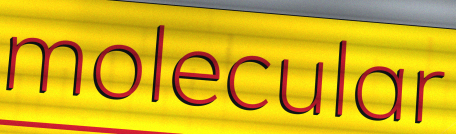
molecular